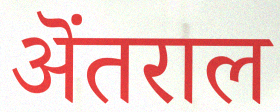
ऄंतराल